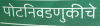
पोटनिवडणुकीचे